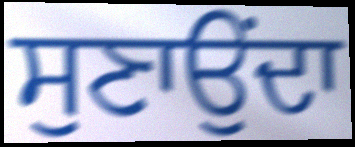
ਸੁਣਾਉਂਦਾ